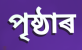
পৃষ্ঠাৰ